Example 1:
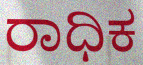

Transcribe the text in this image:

ರಾಧಿಕ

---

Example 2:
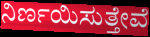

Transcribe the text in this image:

ನಿರ್ಣಯಿಸುತ್ತೇವೆ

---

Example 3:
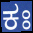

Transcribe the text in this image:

ಕಃ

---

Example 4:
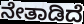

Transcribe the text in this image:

ನೇತಾಡಿದೆ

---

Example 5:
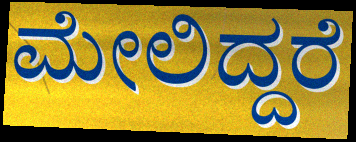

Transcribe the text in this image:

ಮೇಲಿದ್ದರೆ